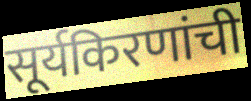
सूर्यकिरणांची